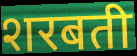
शरबती